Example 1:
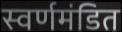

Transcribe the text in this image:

स्वर्णमंडित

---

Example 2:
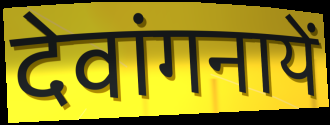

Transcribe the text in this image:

देवांगनायें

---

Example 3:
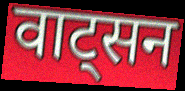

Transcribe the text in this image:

वाट्सन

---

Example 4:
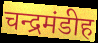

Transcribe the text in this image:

चन्द्रमंडीह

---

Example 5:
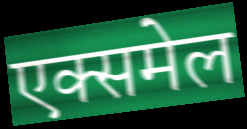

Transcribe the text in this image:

एक्समेल